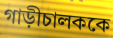
গাড়ীচালককে